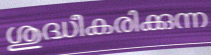
ശുദ്ധീകരിക്കുന്ന